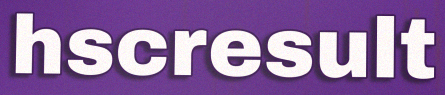
hscresult